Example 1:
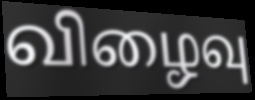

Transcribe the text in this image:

விழைவு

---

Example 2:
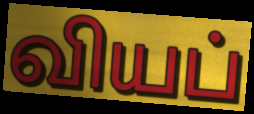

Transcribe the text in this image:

வியப்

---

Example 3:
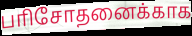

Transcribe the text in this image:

பரிசோதனைக்காக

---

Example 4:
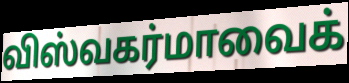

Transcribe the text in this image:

விஸ்வகர்மாவைக்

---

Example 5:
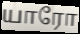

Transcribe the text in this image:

யாரோ